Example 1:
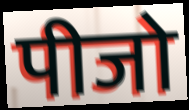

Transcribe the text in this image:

पीजो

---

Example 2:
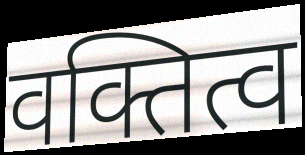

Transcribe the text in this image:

वक्तित्व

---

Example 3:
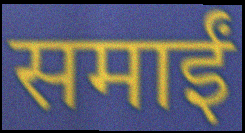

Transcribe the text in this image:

समाईं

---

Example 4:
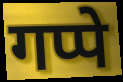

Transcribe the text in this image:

गप्पे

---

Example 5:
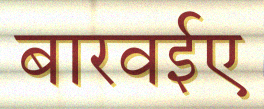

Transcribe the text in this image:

बारवईए